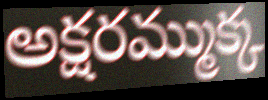
అక్షరమ్ముక్క